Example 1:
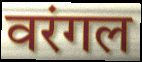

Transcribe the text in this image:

वरंगल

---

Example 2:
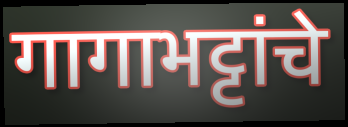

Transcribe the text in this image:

गागाभट्टांचे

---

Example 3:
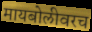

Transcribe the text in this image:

मायबोलीवरच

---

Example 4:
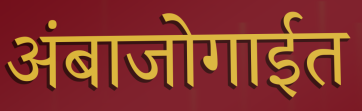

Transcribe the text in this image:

अंबाजोगाईत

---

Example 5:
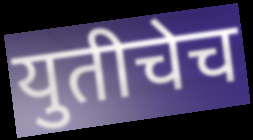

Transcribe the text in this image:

युतीचेच